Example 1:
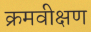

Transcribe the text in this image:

क्रमवीक्षण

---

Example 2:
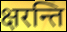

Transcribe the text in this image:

क्षरन्ति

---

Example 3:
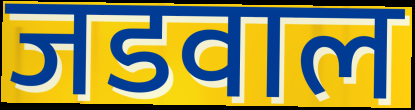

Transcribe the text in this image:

जडवाल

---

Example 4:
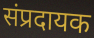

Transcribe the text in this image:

संप्रदायक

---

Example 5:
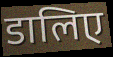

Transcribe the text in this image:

डालिए